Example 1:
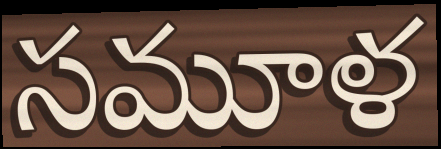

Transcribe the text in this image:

సమూళ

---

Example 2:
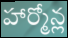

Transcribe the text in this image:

హార్మోన్ల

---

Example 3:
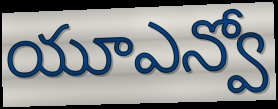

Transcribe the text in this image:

యూఎన్వో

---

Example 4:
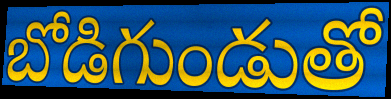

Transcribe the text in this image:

బోడిగుండుతో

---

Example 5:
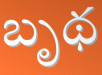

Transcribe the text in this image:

బృథ